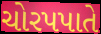
ચોરપપાતે